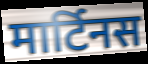
मार्टिनस